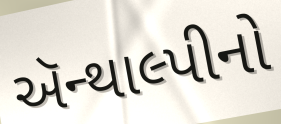
ઍન્થાલ્પીનો